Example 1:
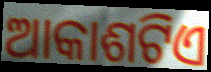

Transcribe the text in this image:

ଆକାଶଟିଏ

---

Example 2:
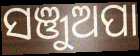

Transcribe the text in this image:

ସଞ୍ଜୁଅପା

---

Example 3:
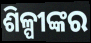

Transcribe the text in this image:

ଶିଳ୍ପୀଙ୍କର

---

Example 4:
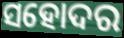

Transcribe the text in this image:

ସହୋଦର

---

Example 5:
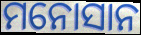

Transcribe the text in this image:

ମନୋସାନ